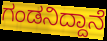
ಗಂಡನಿದ್ದಾನೆ